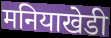
मनियाखेडी